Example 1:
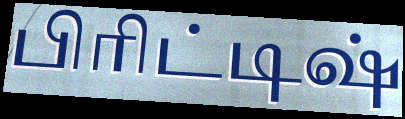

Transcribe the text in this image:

பிரிட்டிஷ்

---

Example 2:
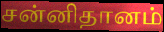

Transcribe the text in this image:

சன்னிதானம்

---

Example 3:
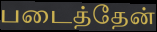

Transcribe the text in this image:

படைத்தேன்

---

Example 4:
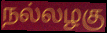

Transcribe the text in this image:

நல்லழகு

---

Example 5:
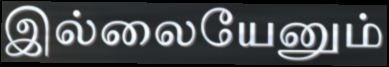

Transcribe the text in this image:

இல்லையேனும்